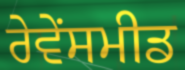
ਰੇਵੇਂਸਮੀਡ